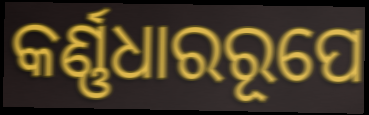
କର୍ଣ୍ଣଧାରରୂପେ